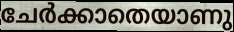
ചേർക്കാതെയാണു